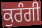
ਕੁਰੰਗੀ